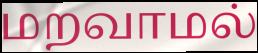
மறவாமல்